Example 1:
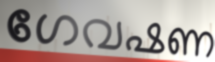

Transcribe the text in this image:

ഗേവഷണ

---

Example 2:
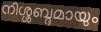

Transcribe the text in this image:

നിശ്ശബ്ദമായും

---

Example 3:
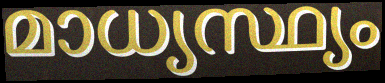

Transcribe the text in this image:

മാധ്യസ്ഥ്യം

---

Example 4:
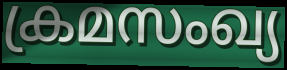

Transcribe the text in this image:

ക്രമസംഖ്യ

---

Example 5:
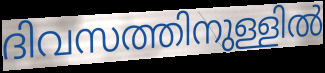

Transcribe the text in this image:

ദിവസത്തിനുള്ളിൽ